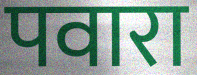
पवारा